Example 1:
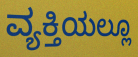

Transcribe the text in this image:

ವ್ಯಕ್ತಿಯಲ್ಲೂ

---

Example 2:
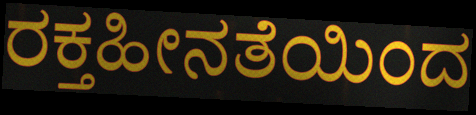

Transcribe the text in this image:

ರಕ್ತಹೀನತೆಯಿಂದ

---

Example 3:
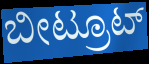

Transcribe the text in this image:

ಬೀಟ್ರೂಟ್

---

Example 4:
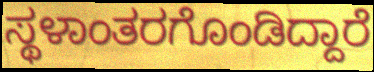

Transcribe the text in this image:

ಸ್ಥಳಾಂತರಗೊಂಡಿದ್ದಾರೆ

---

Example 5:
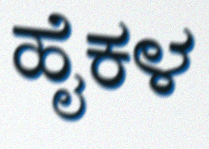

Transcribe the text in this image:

ಹೈಕಳ